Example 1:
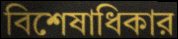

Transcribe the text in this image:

বিশেষাধিকার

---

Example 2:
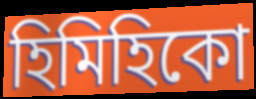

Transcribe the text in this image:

হিমিহিকো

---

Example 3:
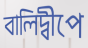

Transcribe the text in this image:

বালিদ্বীপে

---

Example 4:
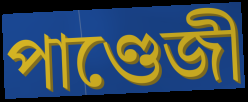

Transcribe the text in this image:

পাণ্ডেজী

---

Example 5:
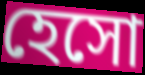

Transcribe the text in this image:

হেসো